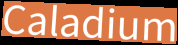
Caladium